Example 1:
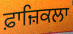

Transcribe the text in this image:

ਫ਼ਾਜ਼ਿਕਲਾ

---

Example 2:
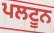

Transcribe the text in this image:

ਪਲਟੂਨ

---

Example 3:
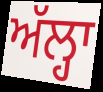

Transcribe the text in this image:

ਅੱਲ੍ਹਾ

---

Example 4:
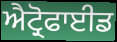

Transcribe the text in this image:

ਐਟ੍ਰੋਫਾਈਡ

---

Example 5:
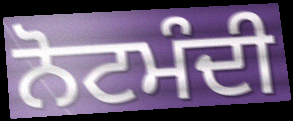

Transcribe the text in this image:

ਨੋਟਮੰਦੀ